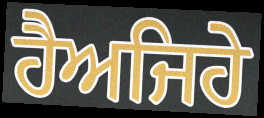
ਹੈਅਜਿਹੇ